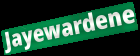
Jayewardene